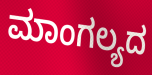
ಮಾಂಗಲ್ಯದ